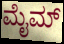
ಮೈಮ್